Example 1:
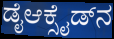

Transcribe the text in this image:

ಡೈಆಕ್ಸೈಡ್‌ನ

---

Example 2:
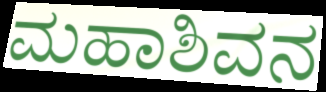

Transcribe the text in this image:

ಮಹಾಶಿವನ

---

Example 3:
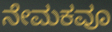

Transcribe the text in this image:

ನೇಮಕವೂ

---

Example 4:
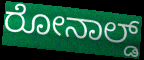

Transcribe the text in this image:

ರೋನಾಲ್ಡ್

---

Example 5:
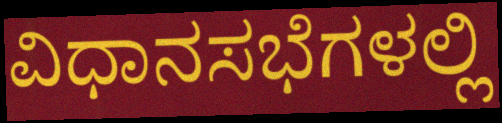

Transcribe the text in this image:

ವಿಧಾನಸಭೆಗಳಲ್ಲಿ